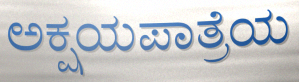
ಅಕ್ಷಯಪಾತ್ರೆಯ